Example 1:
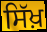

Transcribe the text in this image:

ਸਿੱਖ਼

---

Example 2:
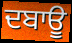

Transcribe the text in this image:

ਦਬਾਊ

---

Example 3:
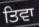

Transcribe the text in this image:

ਤਿਵਾ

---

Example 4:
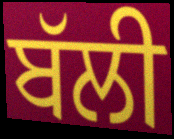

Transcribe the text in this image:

ਬੱਲੀ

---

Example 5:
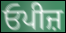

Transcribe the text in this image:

ਓਪੀਜ਼